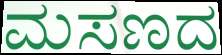
ಮಸಣದ